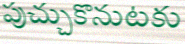
పుచ్చుకొనుటకు